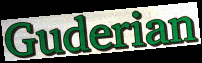
Guderian